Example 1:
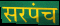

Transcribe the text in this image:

सरपंच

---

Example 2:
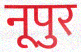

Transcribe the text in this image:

नूपुर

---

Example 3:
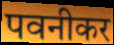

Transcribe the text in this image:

पवनीकर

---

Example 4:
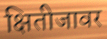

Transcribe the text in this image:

क्षितीजावर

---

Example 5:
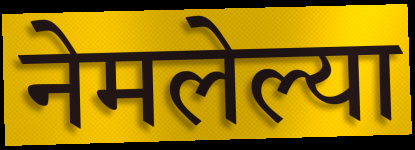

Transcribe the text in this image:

नेमलेल्या